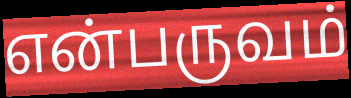
என்பருவம்